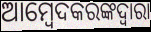
ଆମ୍ବେଦକରଙ୍କଦ୍ୱାରା